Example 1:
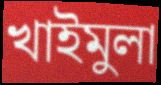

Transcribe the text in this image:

খাইমুলা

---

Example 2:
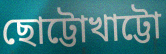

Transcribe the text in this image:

ছোট্টোখাট্টো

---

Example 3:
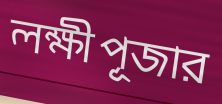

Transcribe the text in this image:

লক্ষীপূজার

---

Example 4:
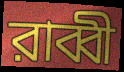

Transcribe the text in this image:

রাব্বী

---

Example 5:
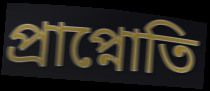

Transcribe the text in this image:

প্রাপ্নোতি